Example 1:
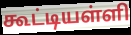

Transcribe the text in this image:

கூட்டியள்ளி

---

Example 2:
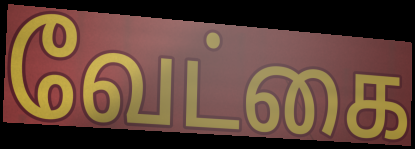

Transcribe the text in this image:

வேட்கை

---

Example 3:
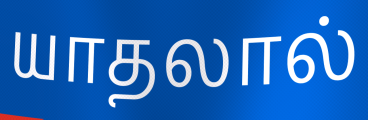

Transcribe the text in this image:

யாதலால்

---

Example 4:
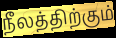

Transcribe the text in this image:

நீலத்திற்கும்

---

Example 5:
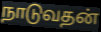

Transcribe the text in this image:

நாடுவதன்